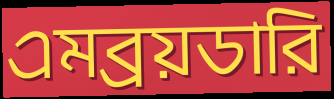
এমব্রয়ডারি